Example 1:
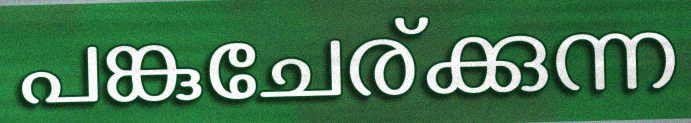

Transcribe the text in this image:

പങ്കുചേര്ക്കുന്ന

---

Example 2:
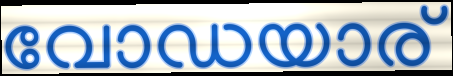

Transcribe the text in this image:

വോഡയാര്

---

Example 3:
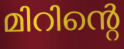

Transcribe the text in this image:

മിറിന്റെ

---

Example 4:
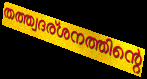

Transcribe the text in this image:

തത്ത്വദര്ശനത്തിന്റെ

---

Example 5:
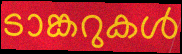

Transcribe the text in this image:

ടാങ്കറുകൾ